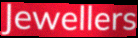
Jewellers